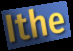
Ithe